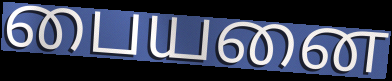
பையனை